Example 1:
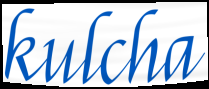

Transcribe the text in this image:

kulcha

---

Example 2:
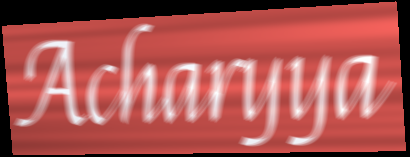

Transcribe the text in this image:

Acharyya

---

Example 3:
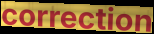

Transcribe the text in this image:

correction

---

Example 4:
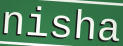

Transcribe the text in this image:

nisha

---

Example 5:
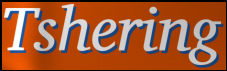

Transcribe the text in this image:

Tshering